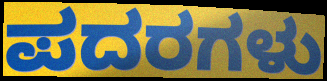
ಪದರಗಳು